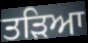
ਤੜਿਆ